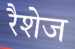
रैशेज